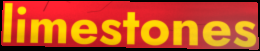
limestones